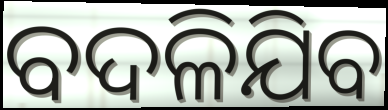
ବଦଳିଯିବ